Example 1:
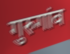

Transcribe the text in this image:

गुरुगांव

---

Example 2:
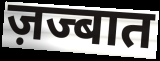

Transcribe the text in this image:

ज़ज्बात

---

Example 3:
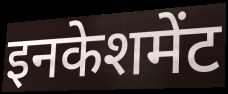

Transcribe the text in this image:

इनकेशमेंट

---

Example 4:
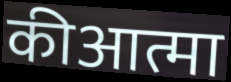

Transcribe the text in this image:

कीआत्मा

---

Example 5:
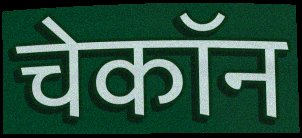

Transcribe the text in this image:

चेकॉन